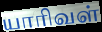
யாரிவள்